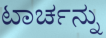
ಟಾರ್ಚನ್ನು